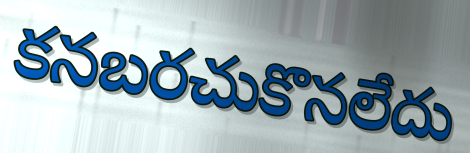
కనబరచుకొనలేదు